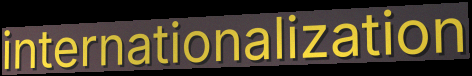
internationalization